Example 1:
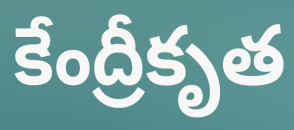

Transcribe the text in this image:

కేంద్రీకృత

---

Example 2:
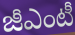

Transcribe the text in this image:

జీఎంటీ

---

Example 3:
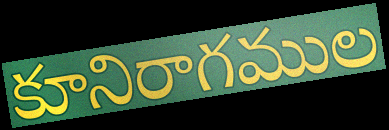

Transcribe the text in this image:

కూనిరాగముల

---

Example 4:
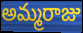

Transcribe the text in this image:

అమ్మరాజు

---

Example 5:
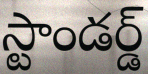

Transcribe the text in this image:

స్టాండర్డ్